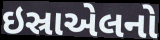
ઇસ્રાએલનો